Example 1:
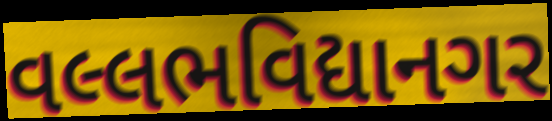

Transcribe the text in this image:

વલ્લભવિદ્યાનગર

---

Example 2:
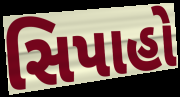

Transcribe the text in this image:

સિપાહો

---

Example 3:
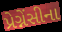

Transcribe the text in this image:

પ્રેગ્નેંસીના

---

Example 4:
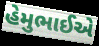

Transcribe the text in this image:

હેમુભાઈએ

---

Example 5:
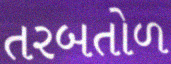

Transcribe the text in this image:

તરબતોળ